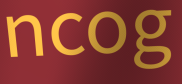
ncog